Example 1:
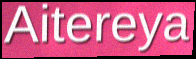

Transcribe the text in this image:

Aitereya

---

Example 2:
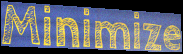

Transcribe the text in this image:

Minimize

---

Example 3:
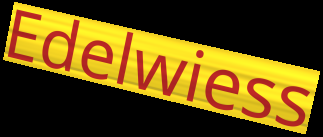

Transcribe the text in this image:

Edelwiess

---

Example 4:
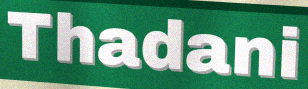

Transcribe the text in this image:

Thadani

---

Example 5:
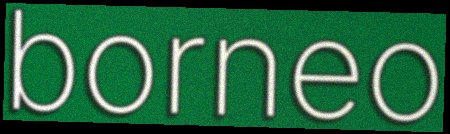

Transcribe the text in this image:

borneo